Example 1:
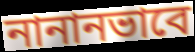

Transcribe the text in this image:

নানানভাবে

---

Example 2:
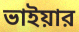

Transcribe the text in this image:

ভাইয়ার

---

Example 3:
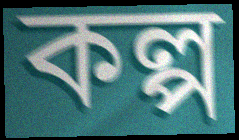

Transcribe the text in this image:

কল্প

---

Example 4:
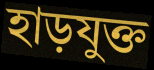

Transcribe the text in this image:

হাড়যুক্ত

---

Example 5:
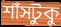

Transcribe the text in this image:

শাঁসটুকু